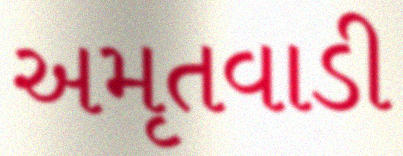
અમૃતવાડી